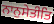
ਨਾਨੁਸੇਤੀਤਿ